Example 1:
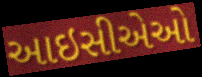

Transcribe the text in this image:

આઇસીએઓ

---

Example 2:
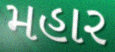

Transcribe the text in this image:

મહાર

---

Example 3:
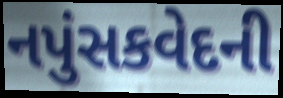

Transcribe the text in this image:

નપુંસકવેદની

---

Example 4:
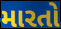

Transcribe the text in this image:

મારતો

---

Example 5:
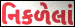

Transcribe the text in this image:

નિકળેલાં